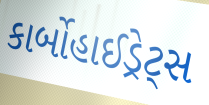
કાર્બોહાઈડ્રેટ્સ